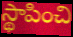
స్థాపించి